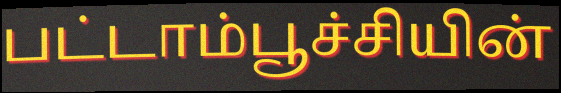
பட்டாம்பூச்சியின்